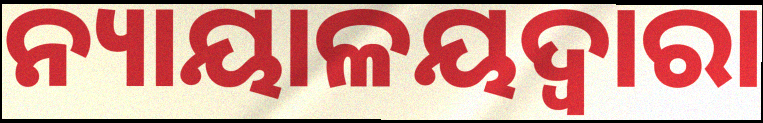
ନ୍ୟାୟାଳୟଦ୍ୱାରା